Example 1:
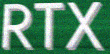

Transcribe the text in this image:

RTX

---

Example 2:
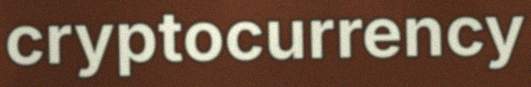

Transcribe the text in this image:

cryptocurrency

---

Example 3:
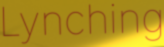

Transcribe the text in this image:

Lynching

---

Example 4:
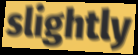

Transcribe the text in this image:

slightly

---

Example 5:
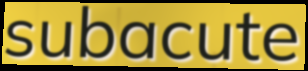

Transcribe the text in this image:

subacute